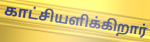
காட்சியளிக்கிறார்